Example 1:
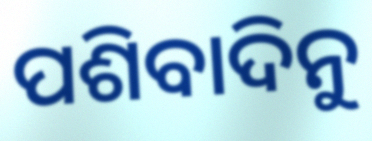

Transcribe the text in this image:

ପଶିବାଦିନୁ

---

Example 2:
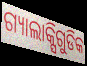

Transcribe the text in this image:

ଗ୍ୟାଲାକ୍ସିଗୁଡିକ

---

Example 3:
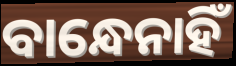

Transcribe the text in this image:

ବାନ୍ଧେନାହିଁ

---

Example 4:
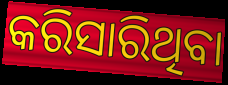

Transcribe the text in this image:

କରିସାରିଥିବା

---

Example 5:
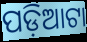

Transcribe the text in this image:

ପଡ଼ିଆଟା